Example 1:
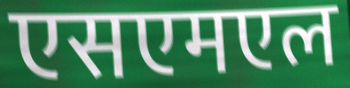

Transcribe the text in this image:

एसएमएल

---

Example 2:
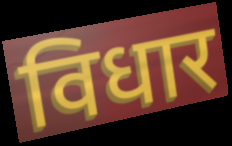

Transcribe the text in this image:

विधार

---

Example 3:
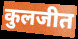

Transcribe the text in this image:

कुलजीत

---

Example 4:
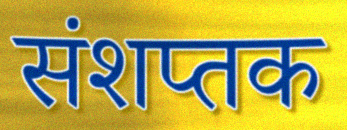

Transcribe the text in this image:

संशप्तक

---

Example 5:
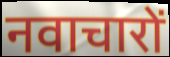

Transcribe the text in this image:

नवाचारों